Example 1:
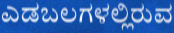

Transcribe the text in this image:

ಎಡಬಲಗಳಲ್ಲಿರುವ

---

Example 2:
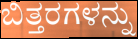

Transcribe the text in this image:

ಬಿತ್ತರಗಳನ್ನು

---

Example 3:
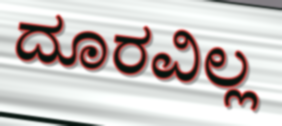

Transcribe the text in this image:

ದೂರವಿಲ್ಲ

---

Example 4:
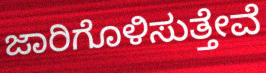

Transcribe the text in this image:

ಜಾರಿಗೊಳಿಸುತ್ತೇವೆ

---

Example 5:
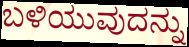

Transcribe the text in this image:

ಬಳಿಯುವುದನ್ನು